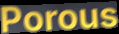
Porous